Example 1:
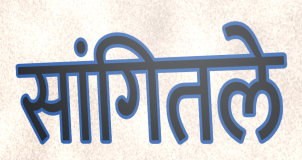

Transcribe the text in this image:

सांगितले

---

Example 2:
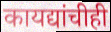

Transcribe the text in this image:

कायद्यांचीही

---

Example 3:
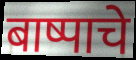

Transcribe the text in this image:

बाष्पाचे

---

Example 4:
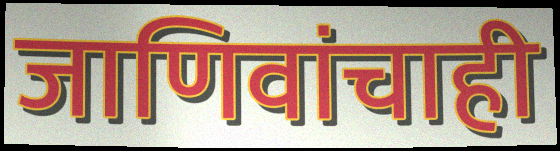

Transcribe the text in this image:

जाणिवांचाही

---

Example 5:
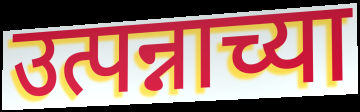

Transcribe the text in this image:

उत्पन्नाच्या